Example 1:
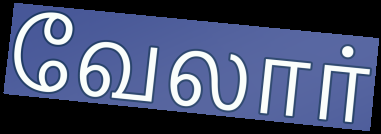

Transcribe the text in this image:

வேலார்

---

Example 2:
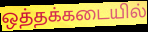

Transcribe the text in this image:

ஒத்தக்கடையில்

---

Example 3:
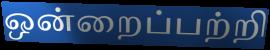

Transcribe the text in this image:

ஒன்றைப்பற்றி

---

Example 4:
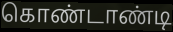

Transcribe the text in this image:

கொண்டாண்டி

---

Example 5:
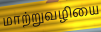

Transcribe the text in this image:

மாற்றுவழியை